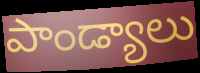
పాండ్యాలు